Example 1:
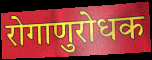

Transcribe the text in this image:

रोगाणुरोधक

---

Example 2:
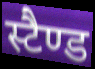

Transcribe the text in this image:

स्टैण्ड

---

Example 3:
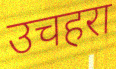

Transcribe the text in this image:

उचहरा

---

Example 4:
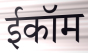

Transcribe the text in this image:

ईकॉम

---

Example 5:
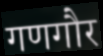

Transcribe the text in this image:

गणगौर